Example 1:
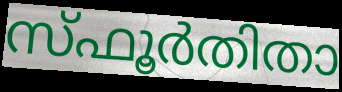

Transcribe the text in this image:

സ്ഫൂർതിതാ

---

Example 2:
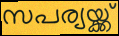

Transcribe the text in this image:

സപര്യയ്ക്ക്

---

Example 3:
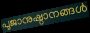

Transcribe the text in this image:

പൂജാനുഷ്ഠാനങ്ങൾ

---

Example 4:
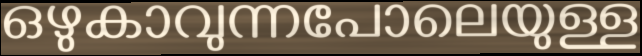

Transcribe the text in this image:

ഒഴുകാവുന്നപോലെയുള്ള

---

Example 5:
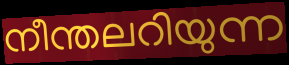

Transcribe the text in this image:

നീന്തലറിയുന്ന